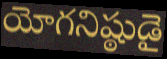
యోగనిష్ఠుడై